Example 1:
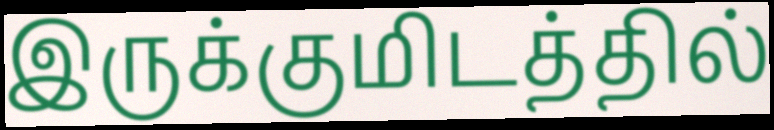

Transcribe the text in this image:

இருக்குமிடத்தில்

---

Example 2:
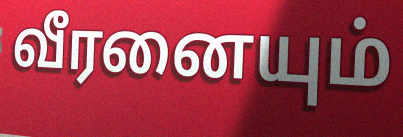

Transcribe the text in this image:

வீரனையும்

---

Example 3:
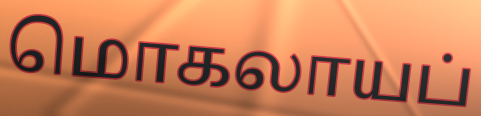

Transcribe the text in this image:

மொகலாயப்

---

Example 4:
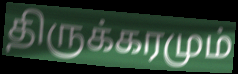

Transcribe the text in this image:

திருக்கரமும்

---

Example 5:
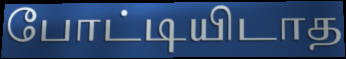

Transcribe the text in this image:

போட்டியிடாத